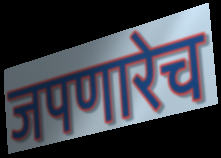
जपणारेच